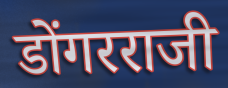
डोंगरराजी